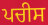
ਪਚੀਸ